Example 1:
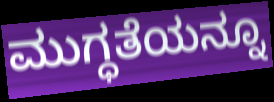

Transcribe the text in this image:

ಮುಗ್ಧತೆಯನ್ನೂ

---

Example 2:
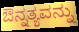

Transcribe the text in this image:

ಔನ್ನತ್ಯವನ್ನು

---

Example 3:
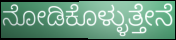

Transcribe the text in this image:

ನೋಡಿಕೊಳ್ಳುತ್ತೇನೆ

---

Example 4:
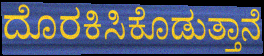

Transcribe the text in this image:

ದೊರಕಿಸಿಕೊಡುತ್ತಾನೆ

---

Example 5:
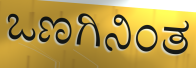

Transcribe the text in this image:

ಒಣಗಿನಿಂತ